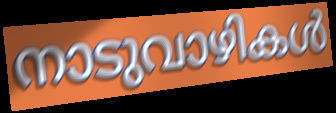
നാടുവാഴികൾ